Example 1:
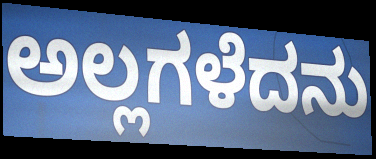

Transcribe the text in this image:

ಅಲ್ಲಗಳೆದನು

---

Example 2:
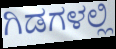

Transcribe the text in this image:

ಗಿಡಗಳಲ್ಲಿ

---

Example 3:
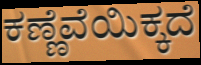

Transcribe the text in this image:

ಕಣ್ಣೆವೆಯಿಕ್ಕದೆ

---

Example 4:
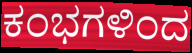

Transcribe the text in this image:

ಕಂಭಗಳಿಂದ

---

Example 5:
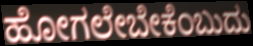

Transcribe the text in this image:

ಹೋಗಲೇಬೇಕೆಂಬುದು